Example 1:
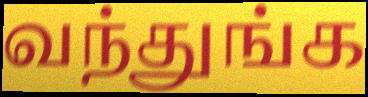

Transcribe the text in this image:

வந்துங்க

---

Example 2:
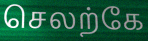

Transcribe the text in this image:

செலற்கே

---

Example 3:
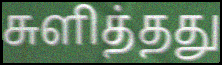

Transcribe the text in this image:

சுளித்தது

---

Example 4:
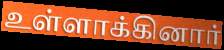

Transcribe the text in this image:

உள்ளாக்கினார்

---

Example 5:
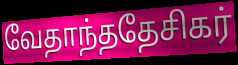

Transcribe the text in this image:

வேதாந்ததேசிகர்